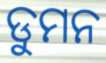
ଡୁମନ